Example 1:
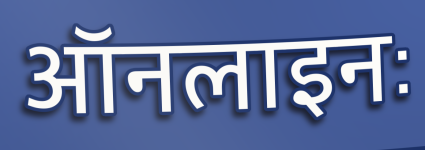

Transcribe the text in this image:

ऑनलाइनः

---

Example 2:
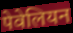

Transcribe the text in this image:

पेवेलियन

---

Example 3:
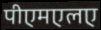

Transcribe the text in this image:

पीएमएलए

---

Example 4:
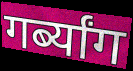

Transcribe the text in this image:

गर्ब्यांग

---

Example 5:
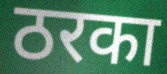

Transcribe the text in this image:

ठरका